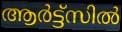
ആർട്ട്സിൽ